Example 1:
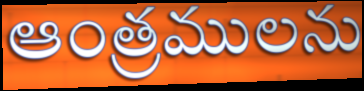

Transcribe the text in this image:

ఆంత్రములను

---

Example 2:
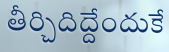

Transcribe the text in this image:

తీర్చిదిద్దేందుకే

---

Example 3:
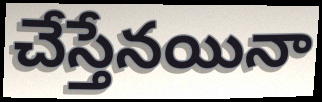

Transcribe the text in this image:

చేస్తేనయినా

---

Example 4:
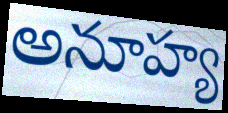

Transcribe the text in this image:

అనూహ్య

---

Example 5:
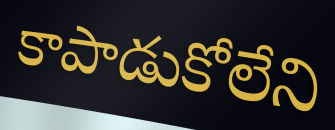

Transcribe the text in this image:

కాపాడుకోలేని